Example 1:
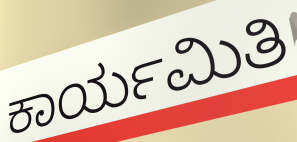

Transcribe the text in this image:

ಕಾರ್ಯಮಿತಿ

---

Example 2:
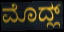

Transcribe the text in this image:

ಮೊದ್ಲ್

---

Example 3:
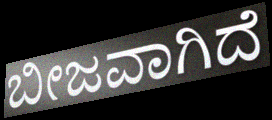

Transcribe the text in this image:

ಬೀಜವಾಗಿದೆ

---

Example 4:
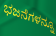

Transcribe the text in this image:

ಭಜನೆಗಳನ್ನೂ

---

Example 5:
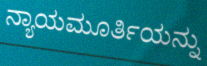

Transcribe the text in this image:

ನ್ಯಾಯಮೂರ್ತಿಯನ್ನು